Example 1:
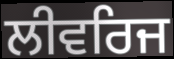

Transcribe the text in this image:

ਲੀਵਰਿਜ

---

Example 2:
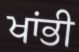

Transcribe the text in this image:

ਖਾਂਭੀ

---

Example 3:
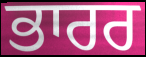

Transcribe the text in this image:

ਭਾਰਰ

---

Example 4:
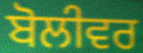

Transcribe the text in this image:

ਬੋਲੀਵਰ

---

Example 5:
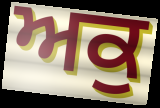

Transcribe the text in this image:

ਅਕੁ